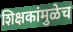
शिक्षकांमुळेच